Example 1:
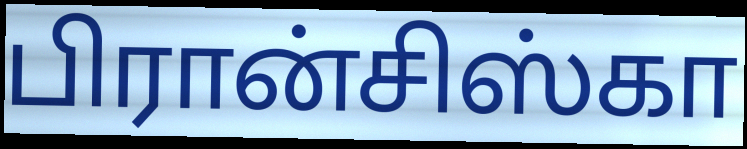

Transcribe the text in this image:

பிரான்சிஸ்கா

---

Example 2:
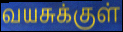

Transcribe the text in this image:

வயசுக்குள்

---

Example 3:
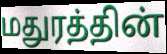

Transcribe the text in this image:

மதுரத்தின்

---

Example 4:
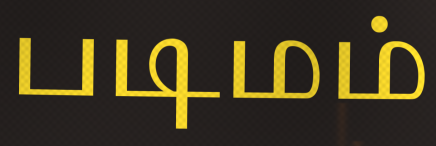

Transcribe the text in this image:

படிமம்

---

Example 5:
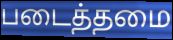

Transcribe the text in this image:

படைத்தமை